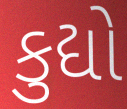
કુદ્યો